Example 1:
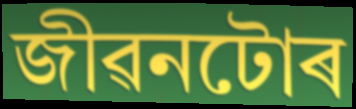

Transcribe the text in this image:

জীৱনটোৰ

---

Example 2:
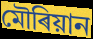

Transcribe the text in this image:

মৌৰিয়ান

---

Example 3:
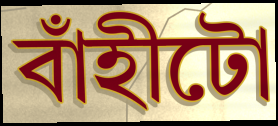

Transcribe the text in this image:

বাঁহীটো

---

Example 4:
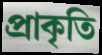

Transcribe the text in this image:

প্ৰাকৃতি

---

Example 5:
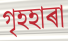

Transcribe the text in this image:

গৃহহাৰা